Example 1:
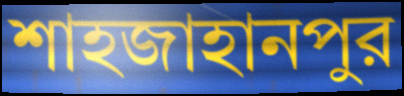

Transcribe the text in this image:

শাহজাহানপুর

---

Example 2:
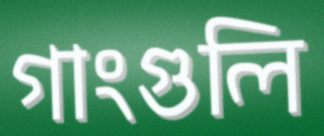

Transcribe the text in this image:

গাংগুলি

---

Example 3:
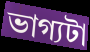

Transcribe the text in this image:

ভাগ্যটা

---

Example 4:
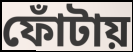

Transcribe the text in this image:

ফোঁটায়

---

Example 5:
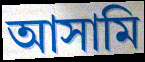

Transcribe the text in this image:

আসামি